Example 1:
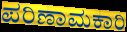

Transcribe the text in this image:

ಪರಿಣಾಮಕಾರಿ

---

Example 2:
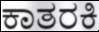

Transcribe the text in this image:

ಕಾತರಕಿ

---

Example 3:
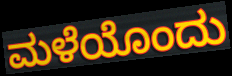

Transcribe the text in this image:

ಮಳೆಯೊಂದು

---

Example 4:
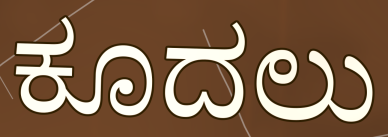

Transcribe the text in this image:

ಕೂದಲು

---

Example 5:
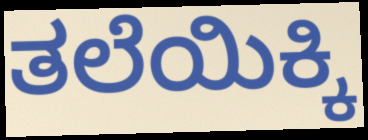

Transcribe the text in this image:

ತಲೆಯಿಕ್ಕಿ